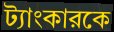
ট্যাংকারকে